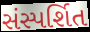
સંસ્પર્શિત